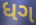
ધગ